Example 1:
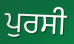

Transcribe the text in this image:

ਪੁਰਸੀ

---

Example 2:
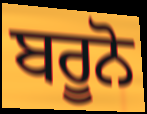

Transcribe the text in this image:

ਬਰੂਨੋ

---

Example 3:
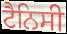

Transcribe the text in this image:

ਟੈਨਿਸੀ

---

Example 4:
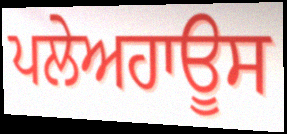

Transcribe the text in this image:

ਪਲੇਅਹਾਊਸ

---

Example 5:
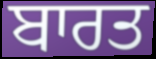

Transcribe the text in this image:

ਬਾਰਤ